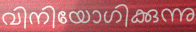
വിനിയോഗിക്കുന്നു